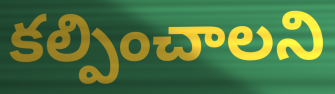
కల్పించాలని